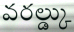
వరల్డ్కు